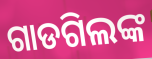
ଗାଡଗିଲଙ୍କ